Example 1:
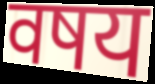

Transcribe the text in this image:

वषय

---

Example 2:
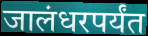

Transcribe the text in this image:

जालंधरपर्यंत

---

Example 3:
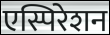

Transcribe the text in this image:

एस्पिरेशन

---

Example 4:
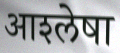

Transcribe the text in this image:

आश्‍लेषा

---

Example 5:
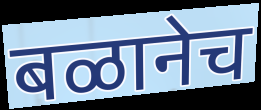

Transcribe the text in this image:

बळानेच